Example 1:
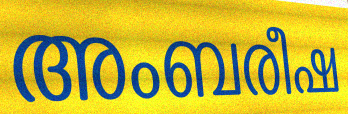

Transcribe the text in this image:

അംബരീഷ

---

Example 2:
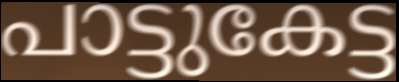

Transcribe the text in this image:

പാട്ടുകേട്ട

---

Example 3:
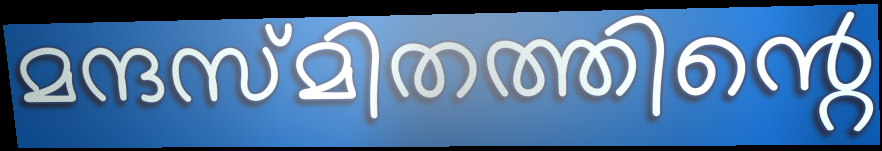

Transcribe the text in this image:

മന്ദസ്മിതത്തിന്റെ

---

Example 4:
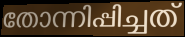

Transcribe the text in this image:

തോന്നിപ്പിച്ചത്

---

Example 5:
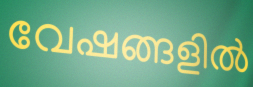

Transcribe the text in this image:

വേഷങ്ങളിൽ